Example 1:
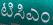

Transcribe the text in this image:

ಟಿಸಿಎಂ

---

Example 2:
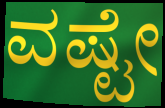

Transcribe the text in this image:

ವಷ್ಟೇ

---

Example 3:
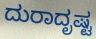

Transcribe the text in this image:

ದುರಾದೃಷ್ಟ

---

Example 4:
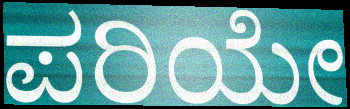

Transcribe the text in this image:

ಪರಿಯೇ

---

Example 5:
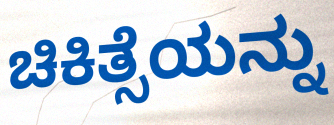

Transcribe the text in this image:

ಚಿಕಿತ್ಸೆಯನ್ನು